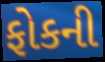
ફોકની